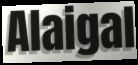
Alaigal